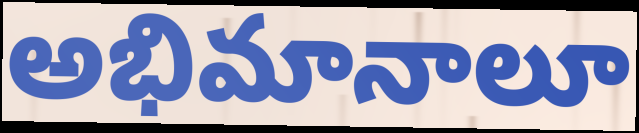
అభిమానాలూ